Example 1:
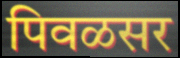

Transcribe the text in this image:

पिवळसर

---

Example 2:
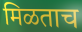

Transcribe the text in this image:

मिळताच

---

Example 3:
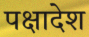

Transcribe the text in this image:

पक्षादेश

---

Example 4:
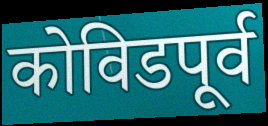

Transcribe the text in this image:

कोविडपूर्व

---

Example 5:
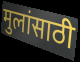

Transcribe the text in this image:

मुलांसाठी